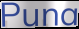
Puna